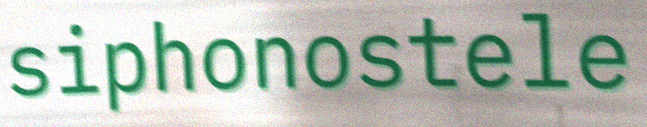
siphonostele